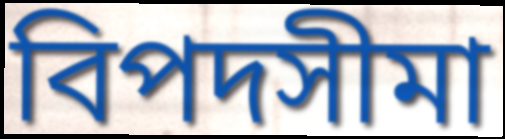
বিপদসীমা